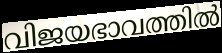
വിജയഭാവത്തിൽ